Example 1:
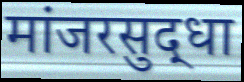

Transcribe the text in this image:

मांजरसुद्धा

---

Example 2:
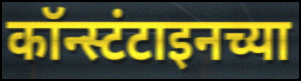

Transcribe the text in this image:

कॉन्स्टंटाइनच्या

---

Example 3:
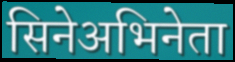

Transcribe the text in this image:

सिनेअभिनेता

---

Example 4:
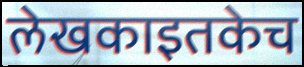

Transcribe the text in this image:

लेखकाइतकेच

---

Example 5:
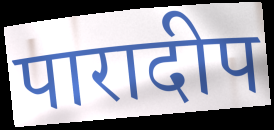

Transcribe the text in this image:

पारादीप